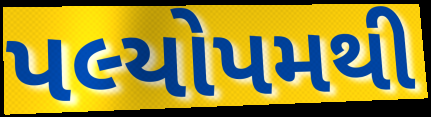
પલ્યોપમથી